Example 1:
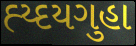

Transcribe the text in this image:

હ્ય્દયગુહા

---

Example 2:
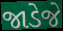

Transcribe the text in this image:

જાડેજે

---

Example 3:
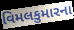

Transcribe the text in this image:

વિમલકુમારના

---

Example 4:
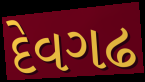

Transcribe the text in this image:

દેવગઢ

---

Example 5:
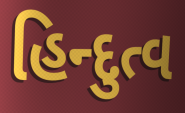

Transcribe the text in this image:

હિન્દુત્વ